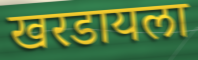
खरडायला